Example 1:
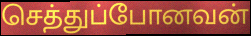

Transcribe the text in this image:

செத்துப்போனவன்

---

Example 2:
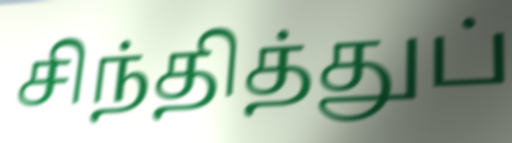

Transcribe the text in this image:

சிந்தித்துப்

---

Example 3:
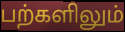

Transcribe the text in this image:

பற்களிலும்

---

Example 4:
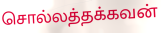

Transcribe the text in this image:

சொல்லத்தக்கவன்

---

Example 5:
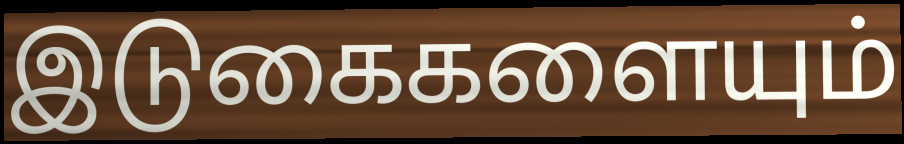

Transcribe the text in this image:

இடுகைகளையும்